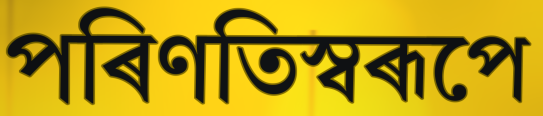
পৰিণতিস্বৰূপে